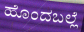
ಹೊಂದಬಲ್ಲೆ